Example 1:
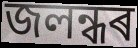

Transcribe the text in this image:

জলন্ধৰ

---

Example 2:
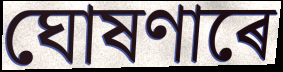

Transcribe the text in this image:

ঘোষণাৰে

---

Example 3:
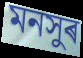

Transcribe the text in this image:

মনসুৰ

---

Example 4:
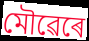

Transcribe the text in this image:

মৌৱেৰে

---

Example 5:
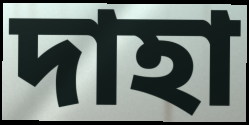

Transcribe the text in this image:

দাহা